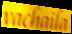
vachaila